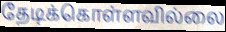
தேடிக்கொள்ளவில்லை